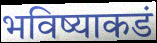
भविष्याकडं